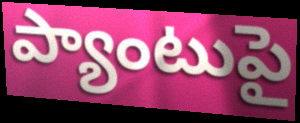
ప్యాంటుపై